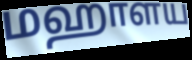
மஹாளய